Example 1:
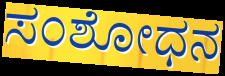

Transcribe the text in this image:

ಸಂಶೋಧನ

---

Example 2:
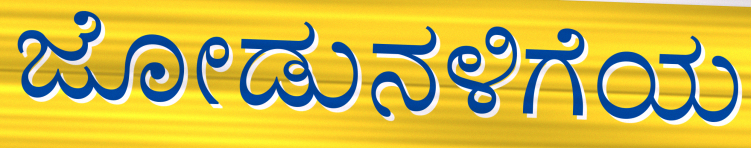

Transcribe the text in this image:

ಜೋಡುನಳಿಗೆಯ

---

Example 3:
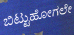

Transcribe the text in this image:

ಬಿಟ್ಟುಹೋಗಲೇ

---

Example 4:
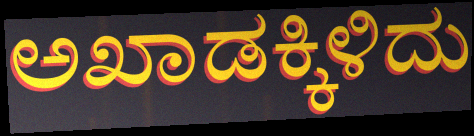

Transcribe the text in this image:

ಅಖಾಡಕ್ಕಿಳಿದು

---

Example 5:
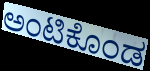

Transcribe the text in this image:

ಅಂಟಿಕೊಂಡ